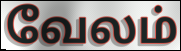
வேலம்